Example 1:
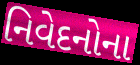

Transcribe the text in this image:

નિવેદનોના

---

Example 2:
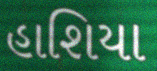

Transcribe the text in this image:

હાશિયા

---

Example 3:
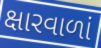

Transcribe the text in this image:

ક્ષારવાળાં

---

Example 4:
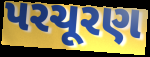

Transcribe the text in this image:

પરચૂરણ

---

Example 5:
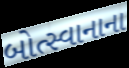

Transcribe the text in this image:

બોત્સ્વાનાના